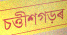
চত্তীশগড়ৰ